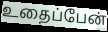
உதைப்பேன்